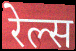
रेल्स